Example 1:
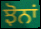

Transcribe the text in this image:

ਝੋਨਾਂ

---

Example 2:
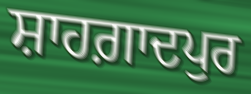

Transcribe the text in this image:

ਸ਼ਾਹਗ਼ਾਦਪੁਰ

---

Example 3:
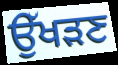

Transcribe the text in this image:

ਉੱਖੜਣ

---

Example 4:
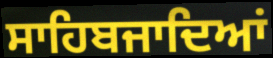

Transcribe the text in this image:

ਸਾਹਿਬਜਾਦਿਆਂ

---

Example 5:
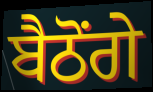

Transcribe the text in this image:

ਬੈਠੋਂਗੇ